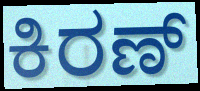
ಕಿರಣ್